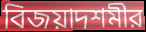
বিজয়াদশমীর